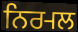
ਨਿਰ੍ਮਲ